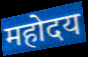
महोदय